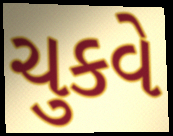
ચુકવે